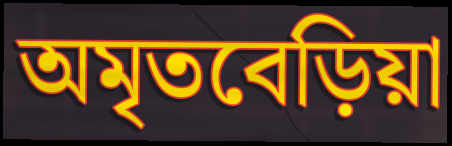
অমৃতবেড়িয়া